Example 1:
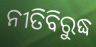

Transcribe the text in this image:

ନୀତିବିରୁଦ୍ଧ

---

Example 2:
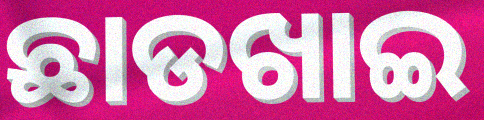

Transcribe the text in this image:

ଛାଡଖାଇ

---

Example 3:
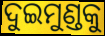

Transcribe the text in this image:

ଦୁଇମୁଣ୍ଡକୁ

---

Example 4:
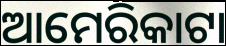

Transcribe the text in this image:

ଆମେରିକାଟା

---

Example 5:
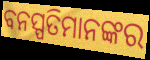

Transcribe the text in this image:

ବନସ୍ପତିମାନଙ୍କର